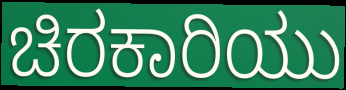
ಚಿರಕಾರಿಯು